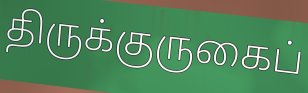
திருக்குருகைப்